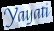
Yayati